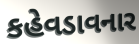
કહેવડાવનાર